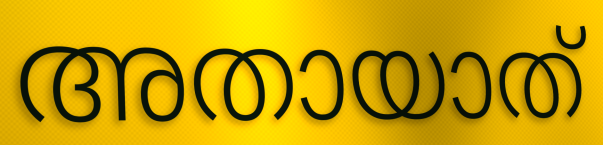
അതായാത്